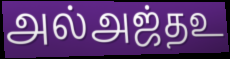
அல்அஜ்தஉ